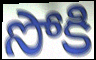
సోకి